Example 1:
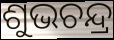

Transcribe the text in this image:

ଶୁଭଚନ୍ଦ୍ର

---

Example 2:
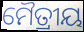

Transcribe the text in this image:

ମୈତ୍ରୀୟ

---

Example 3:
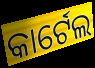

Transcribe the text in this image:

କାର୍ଟେଲ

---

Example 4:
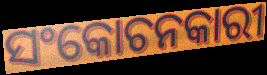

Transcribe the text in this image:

ସଂକୋଚନକାରୀ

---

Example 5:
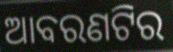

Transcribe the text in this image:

ଆବରଣଟିର